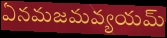
ఏనమజమవ్యయమ్